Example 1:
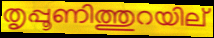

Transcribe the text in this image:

തൃപ്പൂണിത്തുറയില്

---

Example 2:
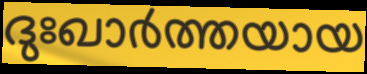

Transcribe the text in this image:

ദുഃഖാർത്തയായ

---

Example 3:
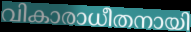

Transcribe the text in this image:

വികാരാധീതനായി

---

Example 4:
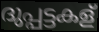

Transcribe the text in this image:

ദുപ്പട്ടകള്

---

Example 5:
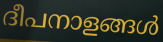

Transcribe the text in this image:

ദീപനാളങ്ങൾ